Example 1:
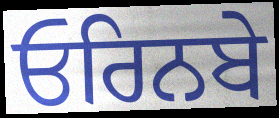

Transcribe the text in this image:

ਓਰਿਨਬੇ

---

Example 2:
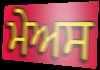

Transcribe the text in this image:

ਮੇਅਸ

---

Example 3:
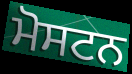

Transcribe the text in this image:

ਮੋਸਟਨ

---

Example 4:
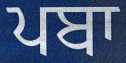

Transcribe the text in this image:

ਪਬਾ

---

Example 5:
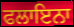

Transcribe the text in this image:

ਫਲਾਇਨਾ